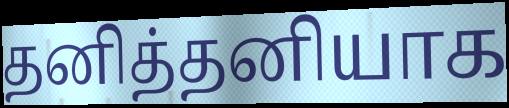
தனித்தனியாக